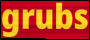
grubs